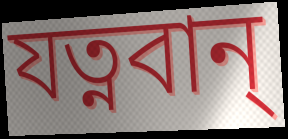
যত্নবান্